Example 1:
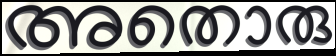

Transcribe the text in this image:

അതൊരു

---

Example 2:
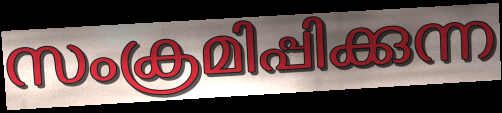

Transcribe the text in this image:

സംക്രമിപ്പിക്കുന്ന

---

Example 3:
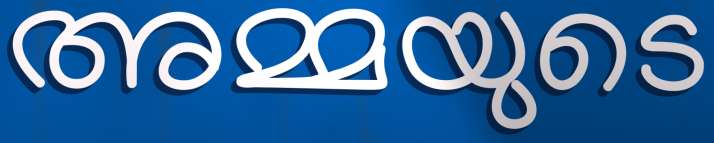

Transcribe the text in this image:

അമ്മയുടെ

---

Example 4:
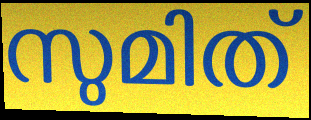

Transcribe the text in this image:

സുമിത്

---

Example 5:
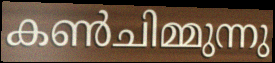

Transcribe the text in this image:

കൺചിമ്മുന്നു